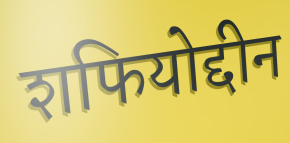
शफियोद्दीन